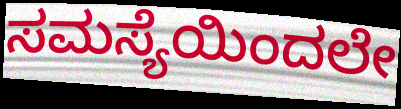
ಸಮಸ್ಯೆಯಿಂದಲೇ